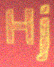
Hj